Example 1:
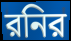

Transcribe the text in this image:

রনির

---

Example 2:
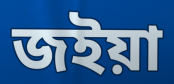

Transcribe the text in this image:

জইয়া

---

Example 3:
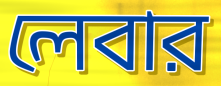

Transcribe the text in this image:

লেবার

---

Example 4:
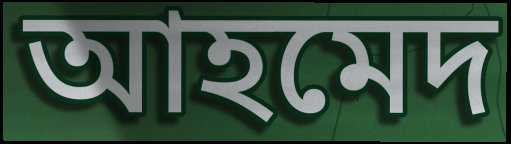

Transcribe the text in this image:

আহমেদ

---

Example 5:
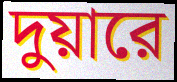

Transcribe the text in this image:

দুয়ারে